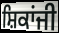
ਸ਼ਿਕਾਂਜੀ